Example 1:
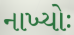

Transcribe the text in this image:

નાખ્યોઃ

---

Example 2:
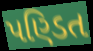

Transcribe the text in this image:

પણ્ડિત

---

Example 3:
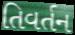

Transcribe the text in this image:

તિવર્તન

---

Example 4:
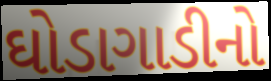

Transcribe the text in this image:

ઘોડાગાડીનો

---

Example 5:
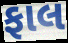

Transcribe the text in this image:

ફાલ